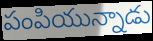
పంపియున్నాడు